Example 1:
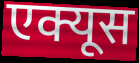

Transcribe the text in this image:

एक्यूस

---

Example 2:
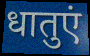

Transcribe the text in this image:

धातुएं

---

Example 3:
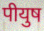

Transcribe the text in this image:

पीयुष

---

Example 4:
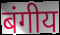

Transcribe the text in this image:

बंगीय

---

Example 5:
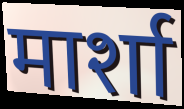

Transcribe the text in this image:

मार्शा